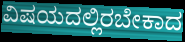
ವಿಷಯದಲ್ಲಿರಬೇಕಾದ